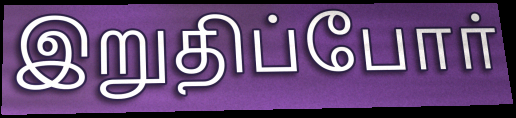
இறுதிப்போர்